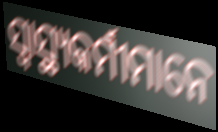
ସ୍ବାସ୍ଥ୍ୟକର୍ମୀମାନେ